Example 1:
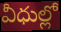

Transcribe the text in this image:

వీధుల్లో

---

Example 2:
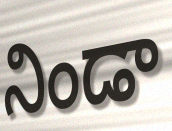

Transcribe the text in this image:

నిండా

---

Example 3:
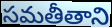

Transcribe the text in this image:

సమతీతాని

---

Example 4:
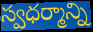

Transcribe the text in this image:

స్వధర్మాన్ని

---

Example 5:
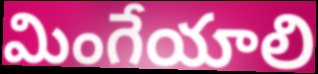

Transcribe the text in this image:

మింగేయాలి